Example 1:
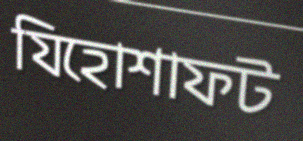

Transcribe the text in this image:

যিহোশাফট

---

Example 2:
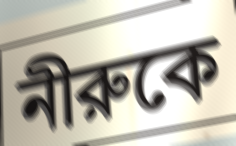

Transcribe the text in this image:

নীরুকে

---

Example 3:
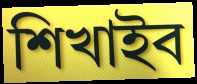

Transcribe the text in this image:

শিখাইব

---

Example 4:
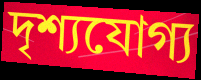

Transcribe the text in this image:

দৃশ্যযোগ্য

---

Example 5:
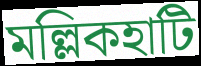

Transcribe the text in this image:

মল্লিকহাটি